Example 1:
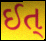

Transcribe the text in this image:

ઈત્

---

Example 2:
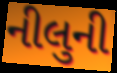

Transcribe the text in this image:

નીલુની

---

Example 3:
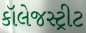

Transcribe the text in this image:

કૉલેજસ્ટ્રીટ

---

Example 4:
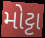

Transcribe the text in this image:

મોટ્ટા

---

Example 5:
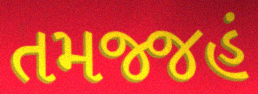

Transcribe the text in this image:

તમજ્જહં